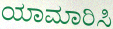
ಯಾಮಾರಿಸಿ